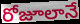
రోజూలానే